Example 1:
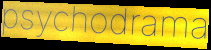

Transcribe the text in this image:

psychodrama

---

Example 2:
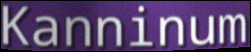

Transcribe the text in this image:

Kanninum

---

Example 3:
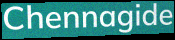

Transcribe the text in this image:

Chennagide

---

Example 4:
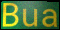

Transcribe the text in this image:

Bua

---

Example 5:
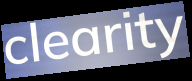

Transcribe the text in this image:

clearity